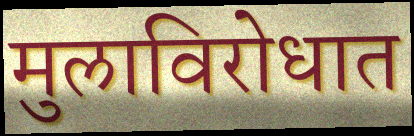
मुलाविरोधात